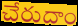
చేరుదాం